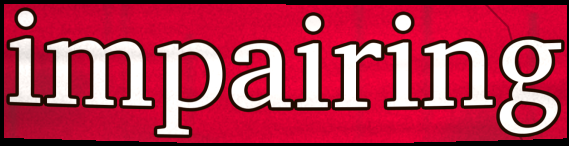
impairing